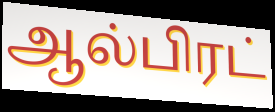
ஆல்பிரட்